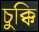
চুক্কি